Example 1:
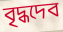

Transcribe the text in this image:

বৃদ্ধদেব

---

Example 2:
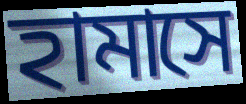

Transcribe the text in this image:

হামাসে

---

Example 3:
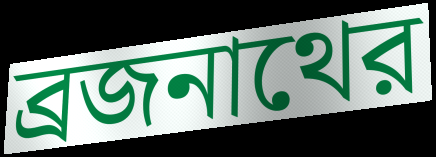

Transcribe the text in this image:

ব্রজনাথের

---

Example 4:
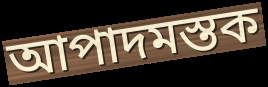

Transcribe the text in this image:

আপাদমস্তক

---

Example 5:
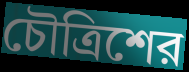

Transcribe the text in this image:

চৌত্রিশের